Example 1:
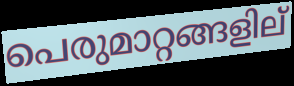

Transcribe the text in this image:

പെരുമാറ്റങ്ങളില്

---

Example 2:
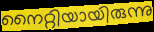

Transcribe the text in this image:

നൈറ്റിയായിരുന്നു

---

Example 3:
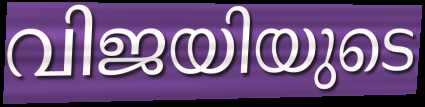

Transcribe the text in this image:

വിജയിയുടെ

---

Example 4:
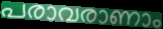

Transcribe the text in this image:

പരാവരാണാം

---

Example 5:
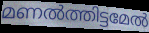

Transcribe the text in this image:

മണൽത്തിട്ടമേൽ